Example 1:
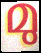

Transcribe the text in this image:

മു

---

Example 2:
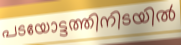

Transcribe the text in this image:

പടയോട്ടത്തിനിടയിൽ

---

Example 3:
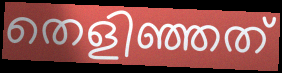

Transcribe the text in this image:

തെളിഞ്ഞത്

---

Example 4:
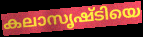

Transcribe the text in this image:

കലാസൃഷ്ടിയെ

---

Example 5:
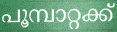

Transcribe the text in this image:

പൂമ്പാറ്റക്ക്